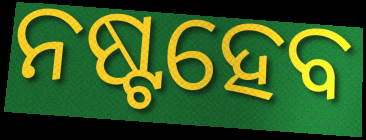
ନଷ୍ଟହେବ